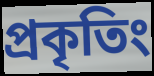
প্রকৃতিং